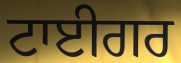
ਟਾਈਗਰ